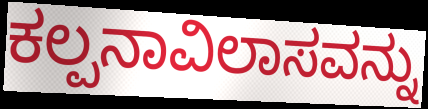
ಕಲ್ಪನಾವಿಲಾಸವನ್ನು